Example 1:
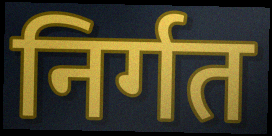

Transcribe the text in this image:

निर्गत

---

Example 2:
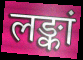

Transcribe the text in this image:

लङ्कां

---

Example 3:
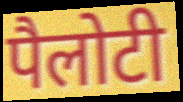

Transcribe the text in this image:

पैलोटी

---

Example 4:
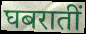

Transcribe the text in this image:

घबरातीं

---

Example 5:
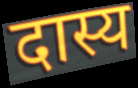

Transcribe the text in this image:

दास्य